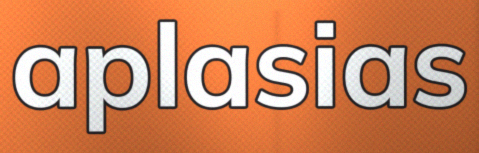
aplasias